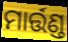
ମାର୍ତ୍ତଣ୍ଡ